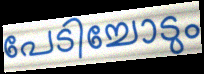
പേടിച്ചോടും